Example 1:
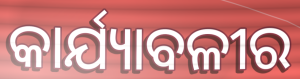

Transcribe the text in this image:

କାର୍ଯ୍ୟାବଳୀର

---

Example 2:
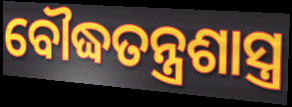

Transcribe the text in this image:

ବୌଦ୍ଧତନ୍ତ୍ରଶାସ୍ତ୍ର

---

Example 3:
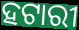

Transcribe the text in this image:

ହଟାରୀ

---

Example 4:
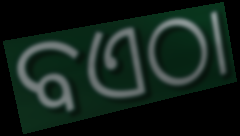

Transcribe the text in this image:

ବଏଠା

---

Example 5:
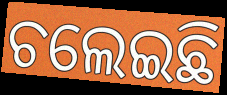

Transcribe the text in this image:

ଚଲେଇଛି